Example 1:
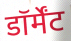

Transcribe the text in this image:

डॉर्मेंट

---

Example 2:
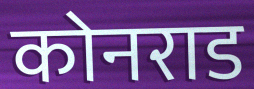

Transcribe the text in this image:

कोनराड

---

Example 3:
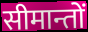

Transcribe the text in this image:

सीमान्तों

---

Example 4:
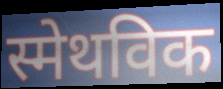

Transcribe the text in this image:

स्मेथविक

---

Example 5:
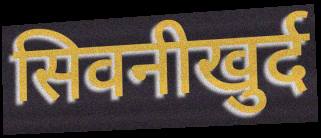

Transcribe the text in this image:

सिवनीखुर्द